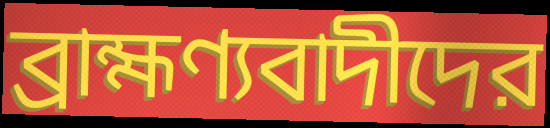
ব্রাহ্মণ্যবাদীদের